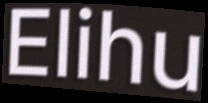
Elihu